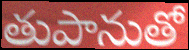
తుపానుతో